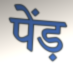
पेंड़